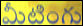
మీటింగు